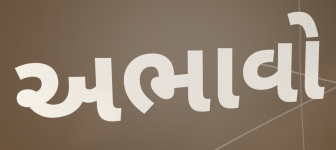
અભાવો